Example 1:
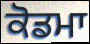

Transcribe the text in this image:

ਕੋਡਮਾ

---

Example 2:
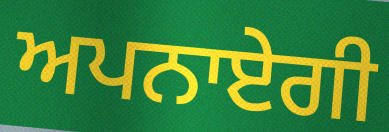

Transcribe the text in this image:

ਅਪਨਾਏਗੀ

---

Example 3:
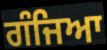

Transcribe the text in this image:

ਗੰਜਿਆ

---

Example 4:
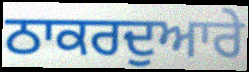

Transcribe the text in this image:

ਠਾਕਰਦੁਆਰੇ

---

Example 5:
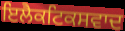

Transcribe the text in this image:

ਇਲੈਕਟਿਕਸਵਾਦ